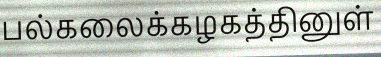
பல்கலைக்கழகத்தினுள்